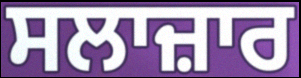
ਸਲਾਜ਼ਾਰ